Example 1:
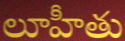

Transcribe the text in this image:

లూహీతు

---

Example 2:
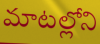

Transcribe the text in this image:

మాటల్లోని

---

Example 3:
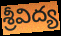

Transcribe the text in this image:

శ్రీవిద్య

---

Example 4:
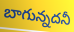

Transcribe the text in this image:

బాగున్నదనీ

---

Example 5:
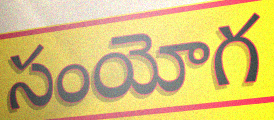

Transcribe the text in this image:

సంయోగ